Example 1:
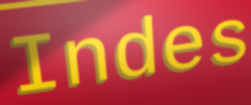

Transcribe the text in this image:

Indes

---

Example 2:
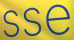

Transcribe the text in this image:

sse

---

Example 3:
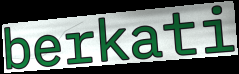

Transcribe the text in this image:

berkati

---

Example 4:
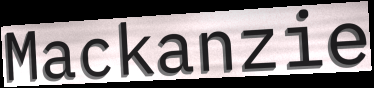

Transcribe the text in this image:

Mackanzie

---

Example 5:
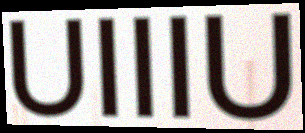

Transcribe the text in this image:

UIIIU